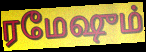
ரமேஷும்